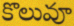
కొలువూ